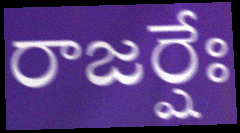
రాజర్షేః